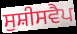
ਸੁਸ਼ੀਸਵੈਪ